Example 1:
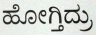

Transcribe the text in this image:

ಹೋಗ್ತಿದ್ರು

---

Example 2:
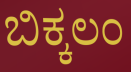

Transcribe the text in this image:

ಬಿಕ್ಕಲಂ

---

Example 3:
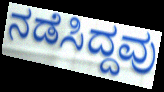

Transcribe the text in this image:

ನಡೆಸಿದ್ದವು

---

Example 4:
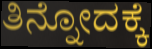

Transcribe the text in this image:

ತಿನ್ನೋದಕ್ಕೆ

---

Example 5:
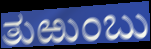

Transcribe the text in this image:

ತುಱುಂಬು